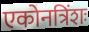
एकोनत्रिंशः